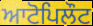
ਆਟੋਪਿਲੌਟ